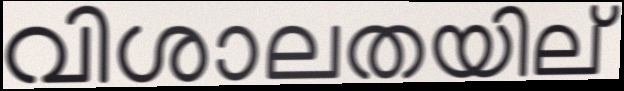
വിശാലതയില്